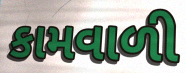
કામવાળી